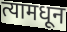
त्यामधून